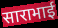
साराभाई